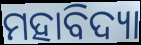
ମହାବିଦ୍ୟା